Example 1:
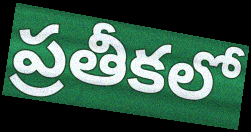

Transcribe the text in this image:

ప్రతీకలో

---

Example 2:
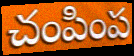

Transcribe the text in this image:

చంపింప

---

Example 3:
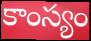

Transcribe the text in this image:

కాంస్యం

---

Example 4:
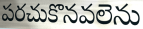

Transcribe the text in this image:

పరచుకొనవలెను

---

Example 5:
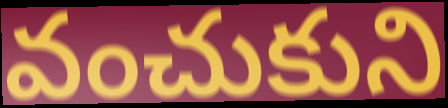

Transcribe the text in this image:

వంచుకుని